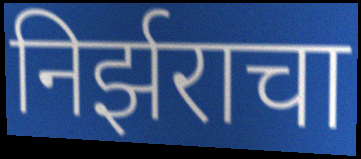
निर्झराचा